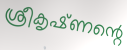
ശ്രീകൃഷ്‌ണന്റെ